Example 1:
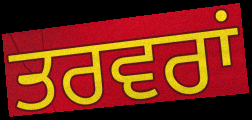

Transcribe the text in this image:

ਤਰਵਰਾਂ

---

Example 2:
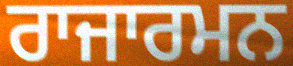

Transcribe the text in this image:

ਰਾਜਾਰਮਨ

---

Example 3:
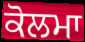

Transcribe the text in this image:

ਕੋਲਮਾ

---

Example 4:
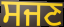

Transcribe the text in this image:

ਸਜਣ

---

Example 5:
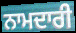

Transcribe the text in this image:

ਨਾਮਦਾਰੀ